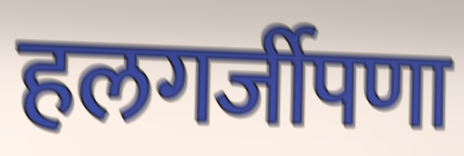
हलगर्जीपणा